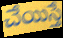
చేయిస్తే